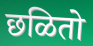
छळितो